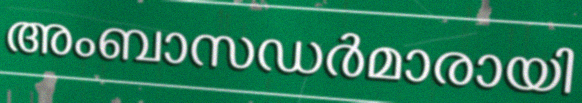
അംബാസഡർമാരായി